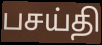
பசய்தி